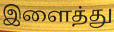
இளைத்து